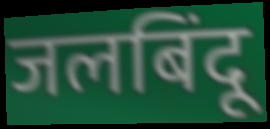
जलबिंदू